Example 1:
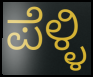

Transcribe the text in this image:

ಪೆಳ್ಳಿ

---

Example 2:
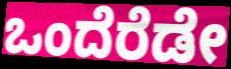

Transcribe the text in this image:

ಒಂದೆರೆಡೇ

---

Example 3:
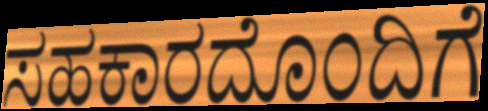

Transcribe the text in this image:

ಸಹಕಾರದೊಂದಿಗೆ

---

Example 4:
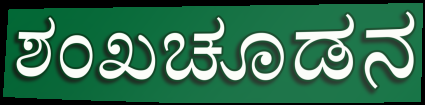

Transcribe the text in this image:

ಶಂಖಚೂಡನ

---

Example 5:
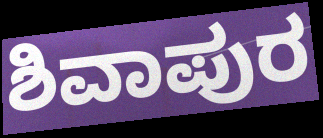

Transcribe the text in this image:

ಶಿವಾಪುರ